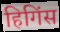
हिगिंस